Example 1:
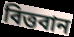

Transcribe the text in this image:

বিত্তবান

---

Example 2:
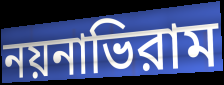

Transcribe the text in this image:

নয়নাভিরাম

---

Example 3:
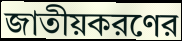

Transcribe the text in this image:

জাতীয়করণের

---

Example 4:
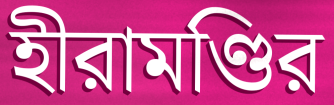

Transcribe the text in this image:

হীরামণ্ডির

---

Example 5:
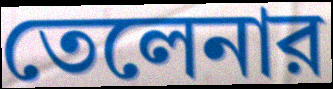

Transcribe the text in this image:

তেলেনার